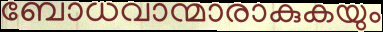
ബോധവാന്മാരാകുകയും